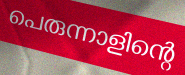
പെരുന്നാളിന്റെ